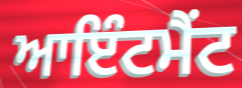
ਆਇੰਟਮੈਂਟ